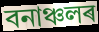
বনাঞ্চলৰ